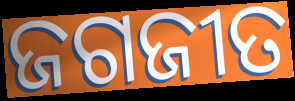
ଜଗଜୀତ